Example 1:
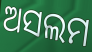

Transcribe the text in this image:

ଅସଲମ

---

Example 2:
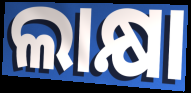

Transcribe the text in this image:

ଲାକ୍ଷା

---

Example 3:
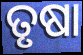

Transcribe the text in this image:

ତୃଷା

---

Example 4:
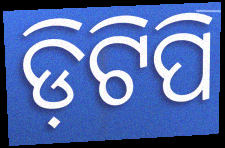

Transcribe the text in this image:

ଡ଼ିଟିପି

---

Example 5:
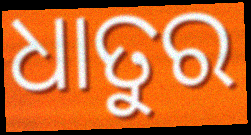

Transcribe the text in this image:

ଧାତୁର